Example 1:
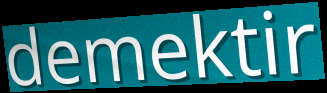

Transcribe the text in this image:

demektir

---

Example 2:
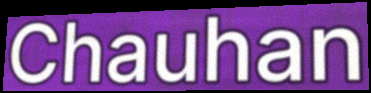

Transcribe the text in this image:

Chauhan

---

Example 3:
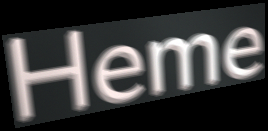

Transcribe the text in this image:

Heme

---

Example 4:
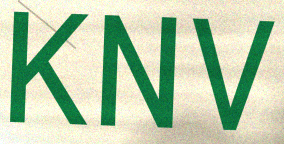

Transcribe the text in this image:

KNV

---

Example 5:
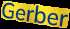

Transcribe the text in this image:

Gerber